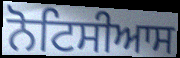
ਨੋਟਿਸੀਆਸ